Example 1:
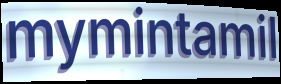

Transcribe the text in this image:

mymintamil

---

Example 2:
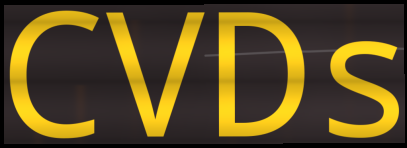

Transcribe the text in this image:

CVDs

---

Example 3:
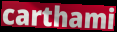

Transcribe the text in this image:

carthami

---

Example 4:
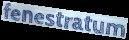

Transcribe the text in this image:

fenestratum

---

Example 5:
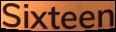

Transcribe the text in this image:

Sixteen